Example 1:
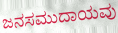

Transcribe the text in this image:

ಜನಸಮುದಾಯವು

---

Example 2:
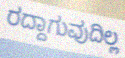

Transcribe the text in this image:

ರದ್ದಾಗುವುದಿಲ್ಲ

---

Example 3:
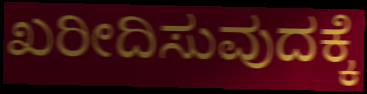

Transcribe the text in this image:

ಖರೀದಿಸುವುದಕ್ಕೆ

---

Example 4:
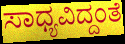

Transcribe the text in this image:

ಸಾಧ್ಯವಿದ್ದಂತೆ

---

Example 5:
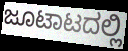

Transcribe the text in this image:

ಜೂಟಾಟದಲ್ಲಿ